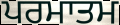
ਪਰਮਾਤਮ